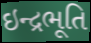
ઇન્દ્રભૂતિ